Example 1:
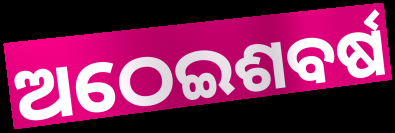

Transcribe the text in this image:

ଅଠେଇଶବର୍ଷ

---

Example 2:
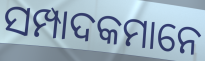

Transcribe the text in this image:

ସମ୍ପାଦକମାନେ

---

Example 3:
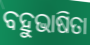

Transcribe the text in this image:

ବହୁଭାଷିତା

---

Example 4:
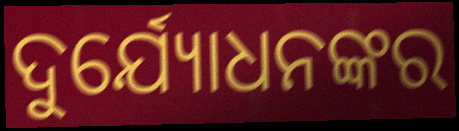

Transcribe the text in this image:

ଦୁର୍ଯ୍ୟୋଧନଙ୍କର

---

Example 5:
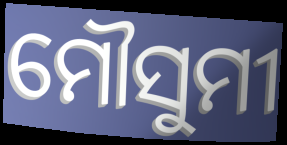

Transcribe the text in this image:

ମୌସୁମୀ